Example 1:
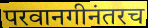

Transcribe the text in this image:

परवानगीनंतरच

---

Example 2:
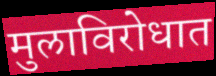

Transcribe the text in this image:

मुलाविरोधात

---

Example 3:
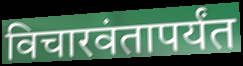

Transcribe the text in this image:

विचारवंतापर्यंत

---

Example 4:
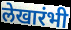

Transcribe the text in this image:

लेखारंभी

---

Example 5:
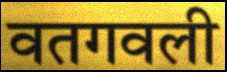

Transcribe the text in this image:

वतगवली